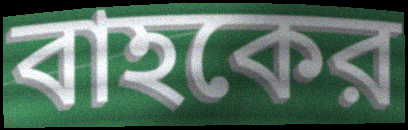
বাহকের